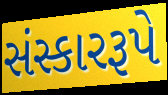
સંસ્કારરૂપે